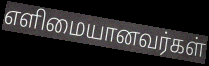
எளிமையானவர்கள்